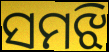
ସମଝି